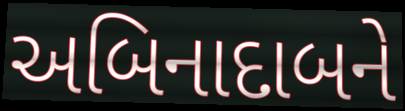
અબિનાદાબને